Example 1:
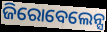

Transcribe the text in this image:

ଜିରୋବେଲେନ୍ସ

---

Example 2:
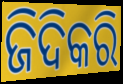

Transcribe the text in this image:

ଜିଦିକରି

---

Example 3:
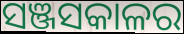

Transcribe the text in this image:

ସଞ୍ଜସକାଳର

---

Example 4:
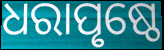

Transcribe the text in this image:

ଧରାପୃଷ୍ଠେ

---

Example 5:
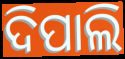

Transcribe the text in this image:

ଦିପାଲି